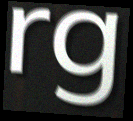
rg